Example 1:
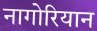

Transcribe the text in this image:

नागोरियान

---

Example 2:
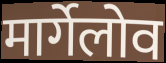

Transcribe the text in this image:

मार्गेलोव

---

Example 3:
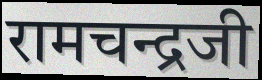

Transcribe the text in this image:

रामचन्द्रजी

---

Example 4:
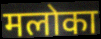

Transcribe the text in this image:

मलोका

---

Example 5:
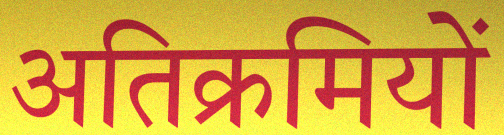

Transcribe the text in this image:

अतिक्रमियों